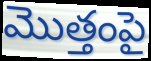
మొత్తంపై